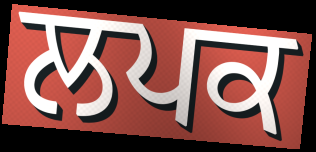
ਲਪਕ